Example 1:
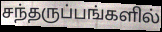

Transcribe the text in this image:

சந்தருப்பங்களில்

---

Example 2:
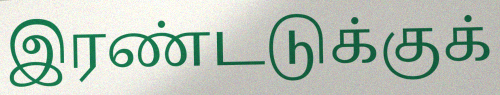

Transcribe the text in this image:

இரண்டடுக்குக்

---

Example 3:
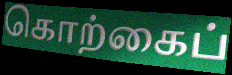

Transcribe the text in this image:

கொற்கைப்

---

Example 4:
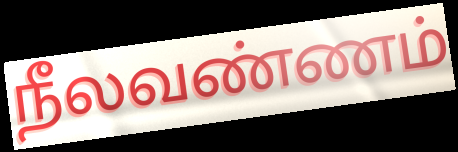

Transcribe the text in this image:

நீலவண்ணம்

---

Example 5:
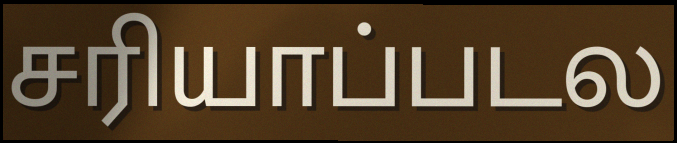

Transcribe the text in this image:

சரியாப்படல